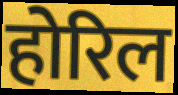
होरिल